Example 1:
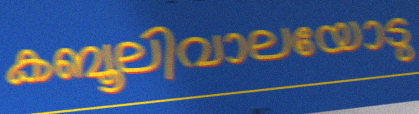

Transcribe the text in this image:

കബൂലിവാലയോടു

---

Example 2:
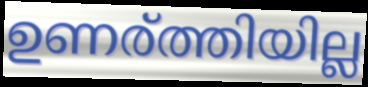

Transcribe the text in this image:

ഉണര്ത്തിയില്ല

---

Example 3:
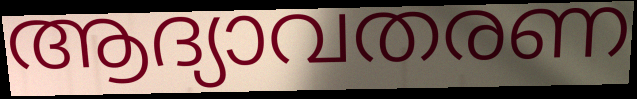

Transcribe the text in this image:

ആദ്യാവതരണ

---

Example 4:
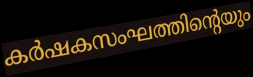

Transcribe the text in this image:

കർഷകസംഘത്തിന്റെയും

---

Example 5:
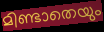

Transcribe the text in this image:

മിണ്ടാതെയും